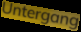
Untergang